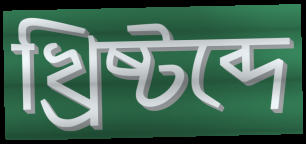
খ্রিষ্টব্দে